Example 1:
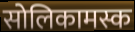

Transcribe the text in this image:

सोलिकामस्क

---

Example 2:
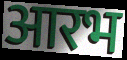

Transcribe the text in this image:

आरभ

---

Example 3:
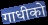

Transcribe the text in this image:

गाधीको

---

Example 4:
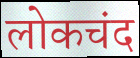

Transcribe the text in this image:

लोकचंद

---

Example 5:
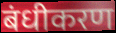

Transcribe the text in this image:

बंधीकरण